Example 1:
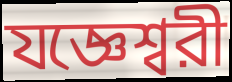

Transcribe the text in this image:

যজ্ঞেশ্বরী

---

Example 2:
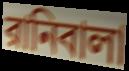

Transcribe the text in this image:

রানিবালা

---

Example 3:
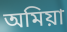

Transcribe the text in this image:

অমিয়া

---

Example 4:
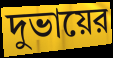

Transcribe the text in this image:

দুভায়ের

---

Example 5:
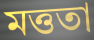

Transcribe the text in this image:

মত্ততা